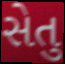
સેતુ